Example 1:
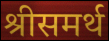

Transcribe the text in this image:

श्रीसमर्थ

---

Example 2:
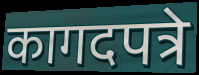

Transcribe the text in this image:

कागदपत्रे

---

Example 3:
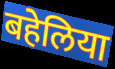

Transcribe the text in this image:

बहेलिया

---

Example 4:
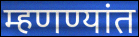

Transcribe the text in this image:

म्हणण्यांत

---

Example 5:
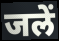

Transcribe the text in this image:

जलें